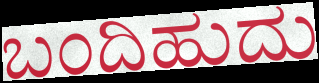
ಬಂದಿಹುದು